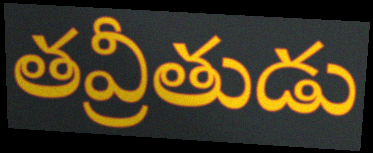
తవ్రీతుడు